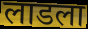
लाडला